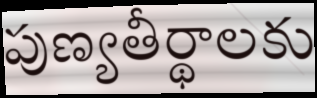
పుణ్యతీర్థాలకు